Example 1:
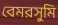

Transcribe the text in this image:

বেমরসুমি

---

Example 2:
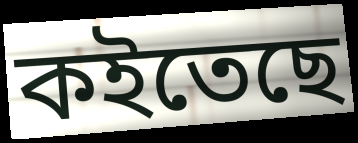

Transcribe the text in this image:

কইতেছে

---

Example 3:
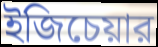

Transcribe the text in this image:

ইজিচেয়ার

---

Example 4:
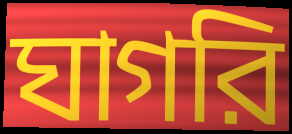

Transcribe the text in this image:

ঘাগরি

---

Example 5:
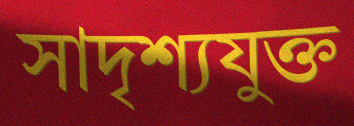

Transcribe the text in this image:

সাদৃশ্যযুক্ত